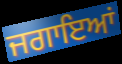
ਜਗਾਇਆਂ